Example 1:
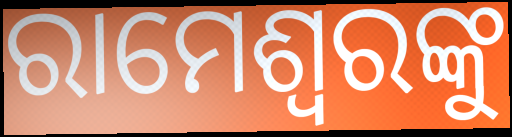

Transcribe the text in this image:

ରାମେଶ୍ୱରଙ୍କୁ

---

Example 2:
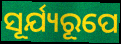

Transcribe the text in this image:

ସୂର୍ଯ୍ୟରୂପେ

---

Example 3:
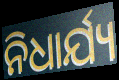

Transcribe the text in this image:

ନିଧାର୍ଯ୍ୟ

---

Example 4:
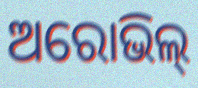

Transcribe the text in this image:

ଅରୋଭିଲ୍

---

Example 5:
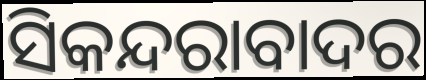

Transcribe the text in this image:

ସିକନ୍ଦରାବାଦର